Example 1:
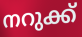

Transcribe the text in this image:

നറുക്ക്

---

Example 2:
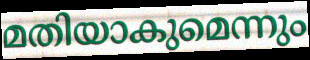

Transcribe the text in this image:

മതിയാകുമെന്നും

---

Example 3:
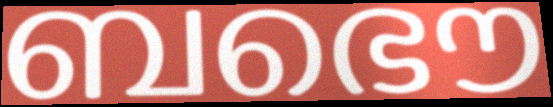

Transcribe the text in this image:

ബഭൌ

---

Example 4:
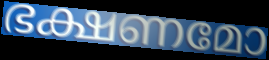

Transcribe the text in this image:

ഭക്ഷണമോ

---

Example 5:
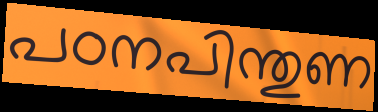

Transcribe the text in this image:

പഠനപിന്തുണ